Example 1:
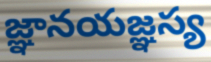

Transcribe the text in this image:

జ్ఞానయజ్ఞస్య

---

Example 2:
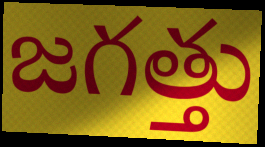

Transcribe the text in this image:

జగత్తు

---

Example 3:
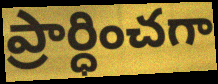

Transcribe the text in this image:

ప్రార్ధించగా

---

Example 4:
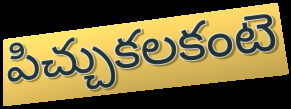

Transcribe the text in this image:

పిచ్చుకలకంటె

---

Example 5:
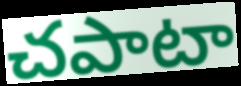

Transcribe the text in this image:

చపాటా